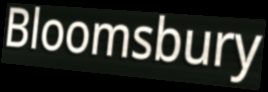
Bloomsbury